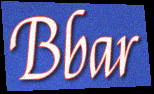
Bbar